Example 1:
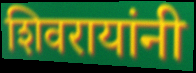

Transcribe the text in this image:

शिवरायांनी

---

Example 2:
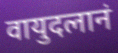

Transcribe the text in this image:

वायुदलानं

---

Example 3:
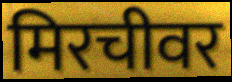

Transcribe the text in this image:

मिरचीवर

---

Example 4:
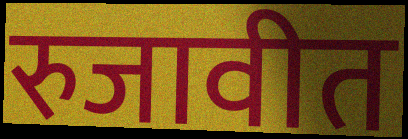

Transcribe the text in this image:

रुजावीत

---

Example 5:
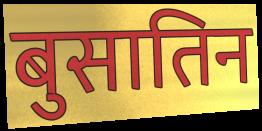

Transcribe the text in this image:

बुसातिन